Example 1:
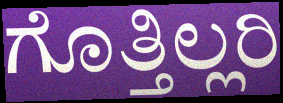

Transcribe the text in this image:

ಗೊತ್ತಿಲ್ಲರಿ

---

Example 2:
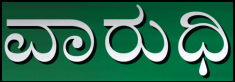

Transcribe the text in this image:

ವಾರುಧಿ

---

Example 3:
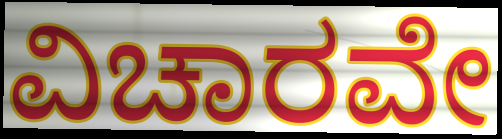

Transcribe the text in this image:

ವಿಚಾರವೇ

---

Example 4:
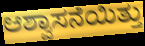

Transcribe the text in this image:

ಆಶ್ವಾಸನೆಯಿತ್ತು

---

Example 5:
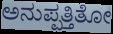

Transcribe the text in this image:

ಅನುಪ್ಪತ್ತಿತೋ